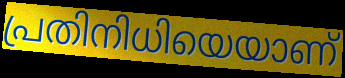
പ്രതിനിധിയെയാണ്